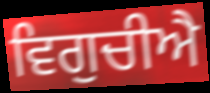
ਵਿਗੁਚੀਐ